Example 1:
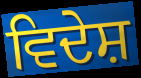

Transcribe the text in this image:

ਵਿਦੇਸ਼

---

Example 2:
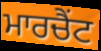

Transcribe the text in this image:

ਮਾਰਚੈਂਟ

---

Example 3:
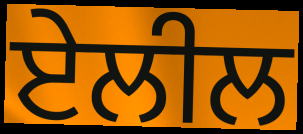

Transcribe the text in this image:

ਏਲੀਲ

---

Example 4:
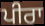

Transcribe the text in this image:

ਪੀਰਾ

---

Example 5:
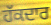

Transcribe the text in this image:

ਹੱਕਦਾਰ